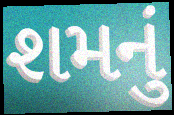
શમનું